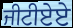
ਜੀਟੀਏਏ